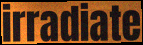
irradiate